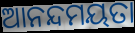
ଆନନ୍ଦମୟତା